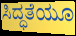
ಸಿದ್ಧತೆಯೂ